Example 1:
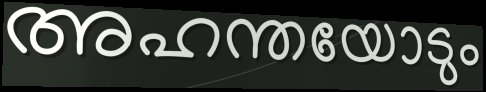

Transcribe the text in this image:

അഹന്തയോടും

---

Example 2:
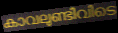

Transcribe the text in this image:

കാവലുണ്ടിവിടെ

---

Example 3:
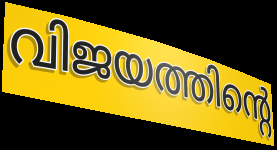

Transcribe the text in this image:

വിജയത്തിന്റെ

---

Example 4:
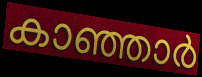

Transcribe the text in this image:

കാഞ്ഞാർ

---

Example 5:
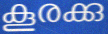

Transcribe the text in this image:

കൂരക്കു